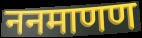
ननमाणण